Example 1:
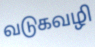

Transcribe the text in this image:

வடுகவழி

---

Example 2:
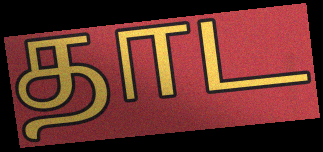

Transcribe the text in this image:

தாட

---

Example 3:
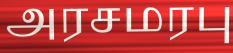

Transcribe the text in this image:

அரசமரபு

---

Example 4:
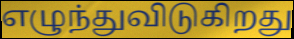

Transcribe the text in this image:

எழுந்துவிடுகிறது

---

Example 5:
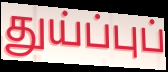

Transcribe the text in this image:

துய்ப்புப்